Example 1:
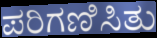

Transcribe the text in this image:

ಪರಿಗಣಿಸಿತು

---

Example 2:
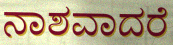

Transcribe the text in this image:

ನಾಶವಾದರೆ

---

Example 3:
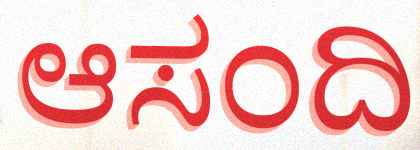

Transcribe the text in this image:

ಆಸಂದಿ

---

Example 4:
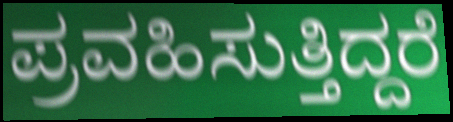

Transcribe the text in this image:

ಪ್ರವಹಿಸುತ್ತಿದ್ದರೆ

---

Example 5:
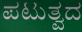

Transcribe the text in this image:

ಪಟುತ್ವದ